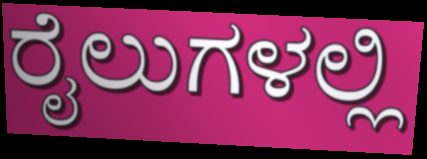
ರೈಲುಗಳಲ್ಲಿ